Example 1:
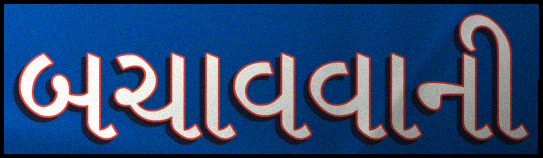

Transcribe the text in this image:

બચાવવાની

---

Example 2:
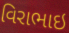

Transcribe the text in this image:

વિરાભાઇ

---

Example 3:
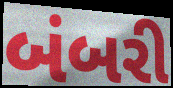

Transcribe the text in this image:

બંબરી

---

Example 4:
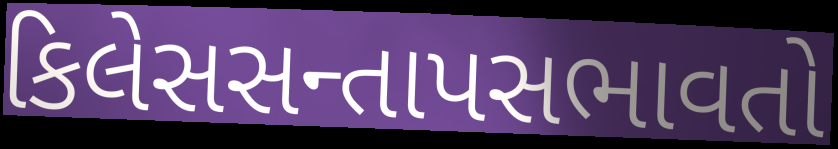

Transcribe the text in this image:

કિલેસસન્તાપસભાવતો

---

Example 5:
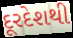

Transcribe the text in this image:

દૂરદેશથી